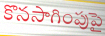
కొనసాగింపుపై